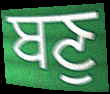
ਬਣੁ